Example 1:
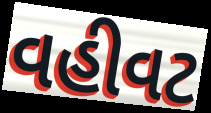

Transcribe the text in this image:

વહીવટ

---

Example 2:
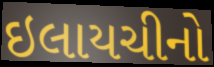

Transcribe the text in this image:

ઇલાયચીનો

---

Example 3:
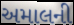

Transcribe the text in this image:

અમાલની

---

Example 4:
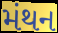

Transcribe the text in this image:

મંથન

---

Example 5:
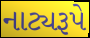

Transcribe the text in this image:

નાટ્યરૂપે